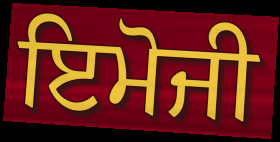
ਇਮੋਜੀ